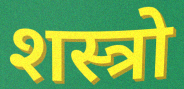
शस्त्रो